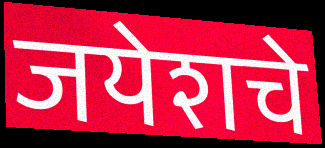
जयेशचे